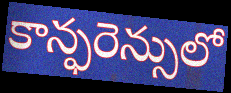
కాన్ఫరెన్సులో